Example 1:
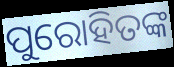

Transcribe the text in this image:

ପୁରୋହିତଙ୍କ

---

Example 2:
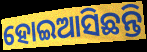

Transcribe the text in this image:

ହୋଇଆସିଛନ୍ତି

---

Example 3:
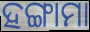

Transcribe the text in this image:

ହଙ୍ଗାମା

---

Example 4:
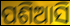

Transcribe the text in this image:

ପଶିଆସି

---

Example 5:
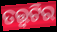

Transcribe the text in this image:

ତତ୍ତ୍ଵଟିର